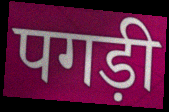
पगड़ी